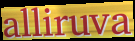
alliruva